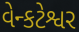
વેન્કટેશ્વર